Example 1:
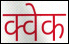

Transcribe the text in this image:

क्वेक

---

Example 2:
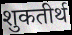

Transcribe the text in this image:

शुकतीर्थ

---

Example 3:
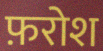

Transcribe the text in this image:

फ़रोश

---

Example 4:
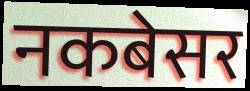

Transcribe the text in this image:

नकबेसर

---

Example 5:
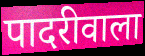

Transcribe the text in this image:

पादरीवाला